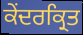
ਕੇਂਦਰਕ੍ਰਿਤ